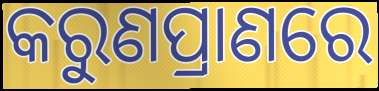
କରୁଣପ୍ରାଣରେ